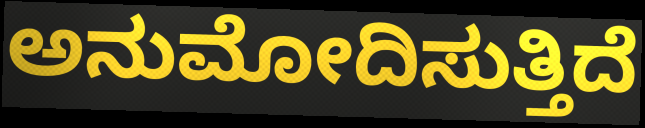
ಅನುಮೋದಿಸುತ್ತಿದೆ